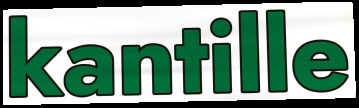
kantille